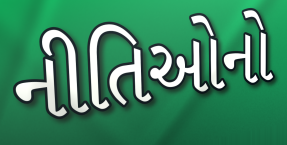
નીતિઓનો